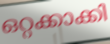
ഒറ്റക്കാക്കി